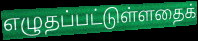
எழுதப்பட்டுள்ளதைக்